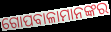
ଗୋପବାଳାମାନଙ୍କର